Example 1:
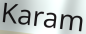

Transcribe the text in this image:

Karam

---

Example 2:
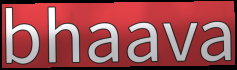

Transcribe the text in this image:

bhaava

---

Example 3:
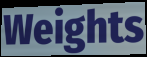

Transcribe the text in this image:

Weights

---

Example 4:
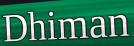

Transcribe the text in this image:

Dhiman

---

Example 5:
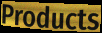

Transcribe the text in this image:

Products